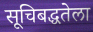
सूचिबद्धतेला